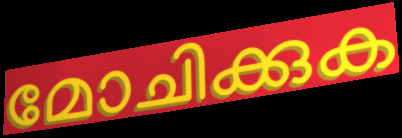
മോചിക്കുക